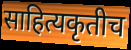
साहित्यकृतीच